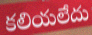
కలియలేదు